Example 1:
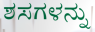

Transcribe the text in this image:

ಶಸಗಳನ್ನು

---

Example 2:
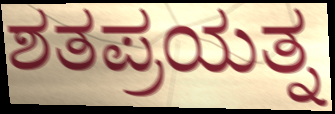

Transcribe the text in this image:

ಶತಪ್ರಯತ್ನ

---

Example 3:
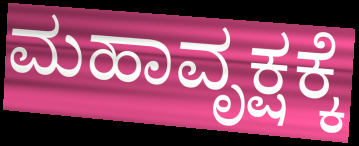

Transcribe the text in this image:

ಮಹಾವೃಕ್ಷಕ್ಕೆ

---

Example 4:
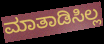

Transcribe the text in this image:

ಮಾತಾಡಿಸಿಲ್ಲ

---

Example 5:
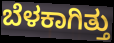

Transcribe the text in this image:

ಬೆಳಕಾಗಿತ್ತು